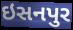
ઇસનપુર